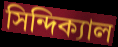
সিন্দিক্যাল